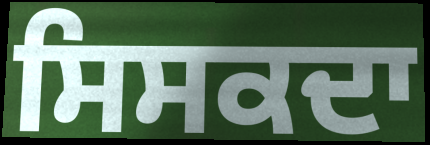
ਸਿਸਕਦਾ